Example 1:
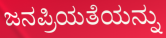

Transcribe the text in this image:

ಜನಪ್ರಿಯತೆಯನ್ನು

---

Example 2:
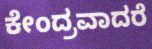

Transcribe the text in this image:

ಕೇಂದ್ರವಾದರೆ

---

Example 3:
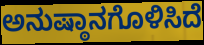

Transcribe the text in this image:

ಅನುಷ್ಠಾನಗೊಳಿಸಿದೆ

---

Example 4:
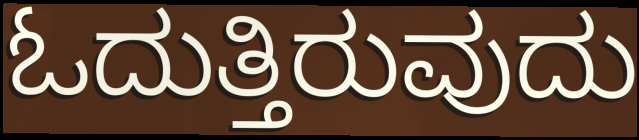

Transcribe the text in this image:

ಓದುತ್ತಿರುವುದು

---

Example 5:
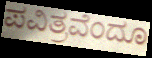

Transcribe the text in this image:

ಪವಿತ್ರವೆಂದೂ